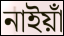
নাইয়াঁ